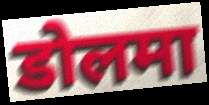
डोलमा